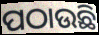
ପଠାଉଛି